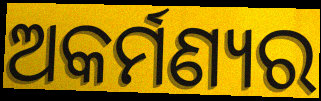
ଅକର୍ମଣ୍ୟର